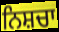
ਨਿਸ਼ਚਾ